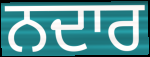
ਨਦਾਰ